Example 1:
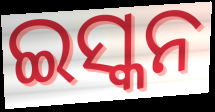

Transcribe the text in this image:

ଇସ୍କନ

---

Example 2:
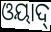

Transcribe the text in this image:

ଓୟାଦ୍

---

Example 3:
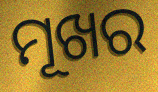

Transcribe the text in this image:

ମୂଖର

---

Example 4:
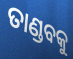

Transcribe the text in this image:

ତାଣ୍ଡବକୁ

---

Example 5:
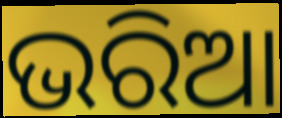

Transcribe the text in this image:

ଭରିଆ